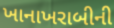
ખાનાખરાબીની